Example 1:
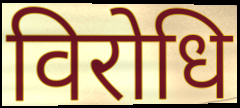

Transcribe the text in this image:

विरोधि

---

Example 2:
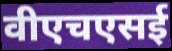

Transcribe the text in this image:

वीएचएसई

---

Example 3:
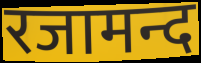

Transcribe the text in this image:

रजामन्द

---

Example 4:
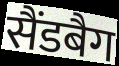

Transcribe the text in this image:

सैंडबैग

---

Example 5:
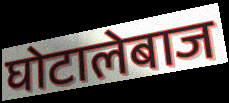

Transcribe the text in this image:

घोटालेबाज